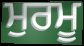
ਮੁਰਮੂ